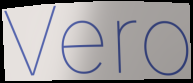
Vero